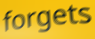
forgets